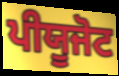
ਪੀਯੂਜੋਟ